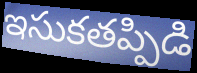
ఇసుకతప్పిడి